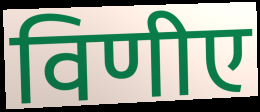
विणीए